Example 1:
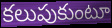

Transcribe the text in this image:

కలుపుకుంటూ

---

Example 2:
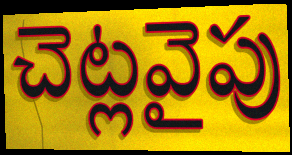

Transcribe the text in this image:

చెట్లవైపు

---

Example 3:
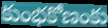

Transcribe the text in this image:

కుంభకోణంకు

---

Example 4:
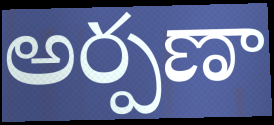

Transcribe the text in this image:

అర్పణా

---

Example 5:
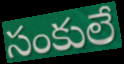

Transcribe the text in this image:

సంకులే